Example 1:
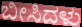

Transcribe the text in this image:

ಬೀಸಿದಳು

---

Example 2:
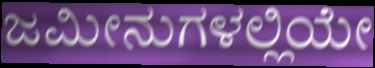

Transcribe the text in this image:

ಜಮೀನುಗಳಲ್ಲಿಯೇ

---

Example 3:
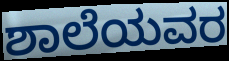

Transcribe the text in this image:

ಶಾಲೆಯವರ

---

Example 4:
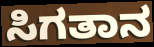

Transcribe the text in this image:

ಸಿಗತಾನ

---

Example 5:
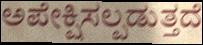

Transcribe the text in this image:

ಅಪೇಕ್ಷಿಸಲ್ಪಡುತ್ತದೆ